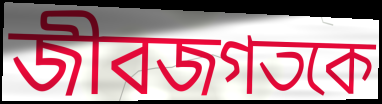
জীবজগতকে